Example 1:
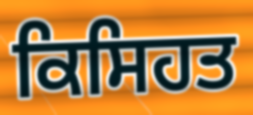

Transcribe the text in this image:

ਕਿਸਿਹਤ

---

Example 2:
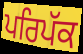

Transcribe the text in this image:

ਪਰਿਪੱਕ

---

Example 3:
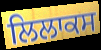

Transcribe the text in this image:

ਲਿਲਾਕਸ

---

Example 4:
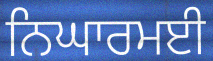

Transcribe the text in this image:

ਨਿਘਾਰਮਈ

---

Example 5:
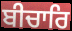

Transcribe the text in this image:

ਬੀਚਾਰਿ